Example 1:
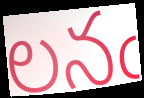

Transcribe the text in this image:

లనఁ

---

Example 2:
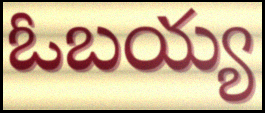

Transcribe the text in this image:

ఓబయ్య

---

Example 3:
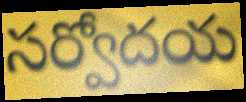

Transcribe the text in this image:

సర్వోదయ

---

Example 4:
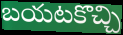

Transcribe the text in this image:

బయటకొచ్చి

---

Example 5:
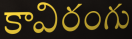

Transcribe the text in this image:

కావిరంగు